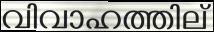
വിവാഹത്തില്